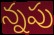
న్నపు